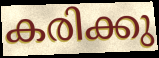
കരിക്കു